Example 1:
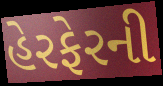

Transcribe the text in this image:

હેરફેરની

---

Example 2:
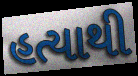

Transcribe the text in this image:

હત્યાથી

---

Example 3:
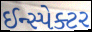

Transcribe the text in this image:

ઈન્સ્પેક્ટર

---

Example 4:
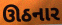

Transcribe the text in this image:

ઊઠનાર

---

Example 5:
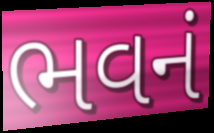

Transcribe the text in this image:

ભવનં